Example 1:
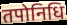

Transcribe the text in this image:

तपोनिधि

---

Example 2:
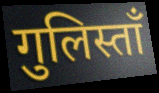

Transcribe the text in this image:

गुलिस्ताँ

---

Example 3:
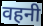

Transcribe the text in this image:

वहनी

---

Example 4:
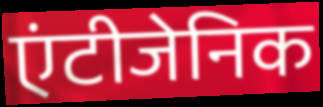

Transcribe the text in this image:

एंटीजेनिक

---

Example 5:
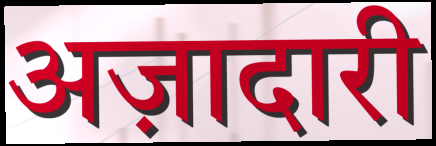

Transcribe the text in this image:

अज़ादारी